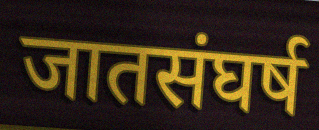
जातसंघर्ष